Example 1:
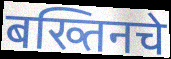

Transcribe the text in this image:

बख्तिनचे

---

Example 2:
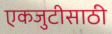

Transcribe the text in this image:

एकजुटीसाठी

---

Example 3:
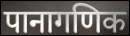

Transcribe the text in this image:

पानागणिक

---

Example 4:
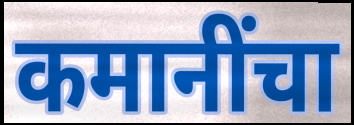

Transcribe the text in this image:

कमानींचा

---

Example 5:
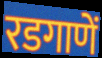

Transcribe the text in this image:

रडगाणें